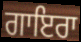
ਗਾਇਰਾ